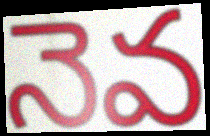
నెవ